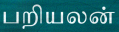
பறியலன்